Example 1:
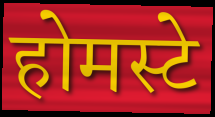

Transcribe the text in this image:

होमस्टे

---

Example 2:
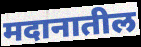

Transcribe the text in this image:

मदानातील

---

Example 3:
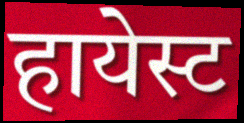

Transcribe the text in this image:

हायेस्ट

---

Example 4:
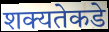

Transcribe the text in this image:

शक्यतेकडे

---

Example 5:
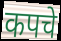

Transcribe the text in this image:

कपचे